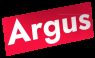
Argus